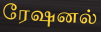
ரேஷனல்